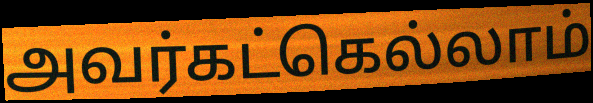
அவர்கட்கெல்லாம்